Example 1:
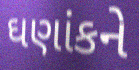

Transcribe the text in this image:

ઘણાંકને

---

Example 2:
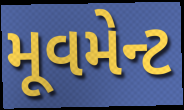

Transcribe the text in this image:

મૂવમેન્ટ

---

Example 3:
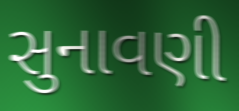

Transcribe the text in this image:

સુનાવણી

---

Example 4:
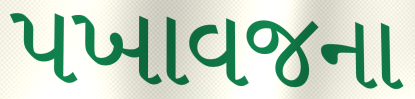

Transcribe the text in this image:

પખાવજના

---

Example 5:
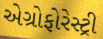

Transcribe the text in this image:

એગ્રોફોરેસ્ટ્રી